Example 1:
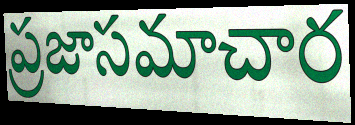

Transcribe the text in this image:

ప్రజాసమాచార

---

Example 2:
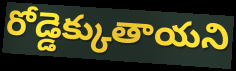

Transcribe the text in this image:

రోడ్డెక్కుతాయని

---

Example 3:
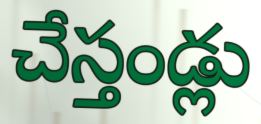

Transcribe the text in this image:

చేస్తండ్లు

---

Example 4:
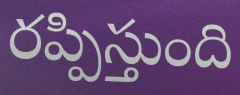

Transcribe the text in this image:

రప్పిస్తుంది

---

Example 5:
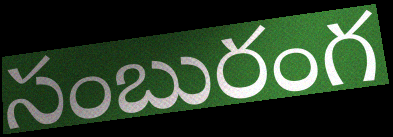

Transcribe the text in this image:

సంబురంగ